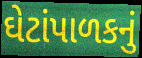
ઘેટાંપાળકનું